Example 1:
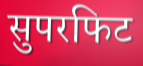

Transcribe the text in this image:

सुपरफिट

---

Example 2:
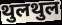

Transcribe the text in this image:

थुलथुल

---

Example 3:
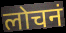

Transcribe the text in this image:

लोचनं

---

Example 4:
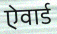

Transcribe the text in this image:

ऐवार्ड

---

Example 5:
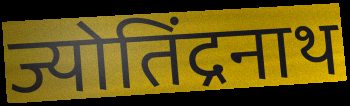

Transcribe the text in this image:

ज्योतिंद्रनाथ